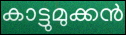
കാട്ടുമുക്കൻ